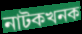
নাটকখনক